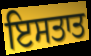
ਇਸਤਾਤ